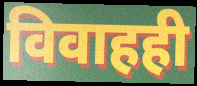
विवाहही